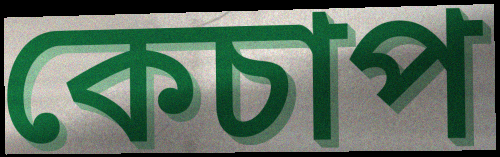
কেচাপ